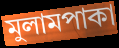
মুলামপাকা